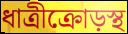
ধাত্রীক্রোড়স্থ